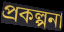
প্রকল্পনা